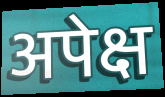
अपेक्ष